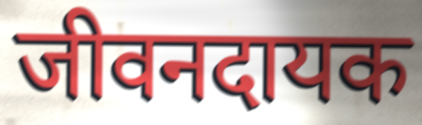
जीवनदायक